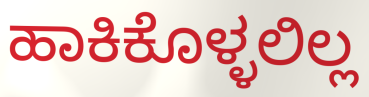
ಹಾಕಿಕೊಳ್ಳಲಿಲ್ಲ